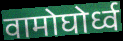
वामोघोर्ध्व